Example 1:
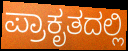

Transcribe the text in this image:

ಪ್ರಾಕೃತದಲ್ಲಿ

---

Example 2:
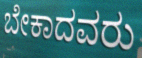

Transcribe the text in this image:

ಬೇಕಾದವರು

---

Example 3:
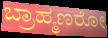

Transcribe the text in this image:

ಬ್ರಾಹ್ಮಣರೋ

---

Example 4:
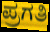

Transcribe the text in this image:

ಪ್ರಗತಿ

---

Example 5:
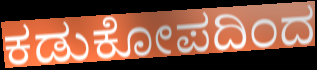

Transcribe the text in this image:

ಕಡುಕೋಪದಿಂದ